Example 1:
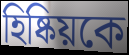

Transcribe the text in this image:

হিষ্কিয়কে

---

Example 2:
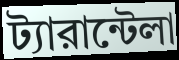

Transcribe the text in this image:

ট্যারান্টেলা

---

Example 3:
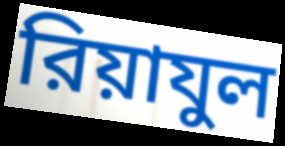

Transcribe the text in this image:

রিয়াযুল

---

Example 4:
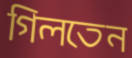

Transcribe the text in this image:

গিলতেন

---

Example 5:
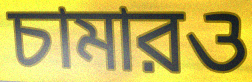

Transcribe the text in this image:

চামারও